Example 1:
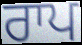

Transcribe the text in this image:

ਰਾਪ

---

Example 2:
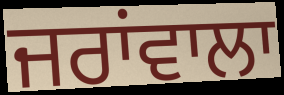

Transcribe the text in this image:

ਜਰਾਂਵਾਲਾ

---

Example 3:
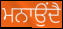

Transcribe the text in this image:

ਮਨਾਉਂਦੈ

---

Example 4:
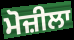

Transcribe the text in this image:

ਮੋਜ਼ੀਲਾ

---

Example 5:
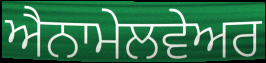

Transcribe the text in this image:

ਐਨਾਮੇਲਵੇਅਰ